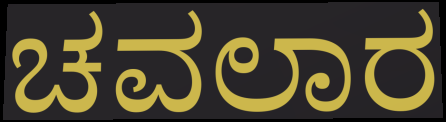
ಚವಲಾರ